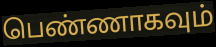
பெண்ணாகவும்